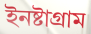
ইনষ্টাগ্ৰাম